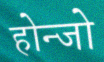
होन्जो